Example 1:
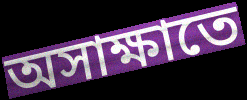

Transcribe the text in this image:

অসাক্ষাতে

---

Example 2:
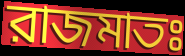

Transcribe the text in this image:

রাজমাতঃ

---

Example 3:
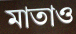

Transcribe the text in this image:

মাতাও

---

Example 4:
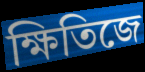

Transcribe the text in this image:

ক্ষিতিজে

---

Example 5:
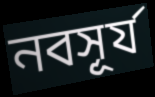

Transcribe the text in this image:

নবসূর্য